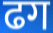
ढग